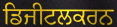
ਡਿਜੀਟਲਕਰਨ